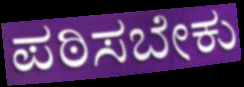
ಪಠಿಸಬೇಕು